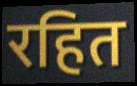
रहित